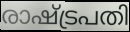
രാഷ്ട്രപതി